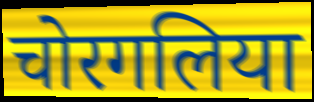
चोरगलिया